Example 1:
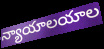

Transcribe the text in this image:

న్యాయాలయాల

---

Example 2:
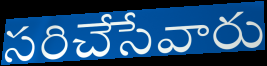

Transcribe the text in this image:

సరిచేసేవారు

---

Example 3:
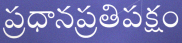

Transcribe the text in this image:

ప్రధానప్రతిపక్షం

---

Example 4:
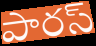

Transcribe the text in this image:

పారస్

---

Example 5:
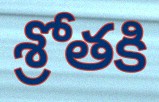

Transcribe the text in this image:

శ్రోతకి